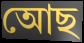
আেছ